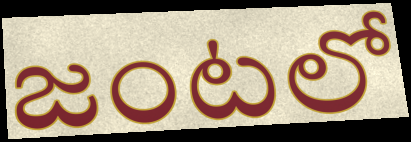
జంటలో